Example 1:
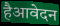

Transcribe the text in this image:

हैआवेदन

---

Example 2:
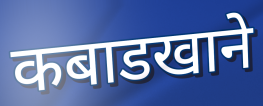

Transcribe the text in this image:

कबाडखाने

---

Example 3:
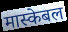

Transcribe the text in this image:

मास्केबल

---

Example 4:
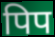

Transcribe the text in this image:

पिप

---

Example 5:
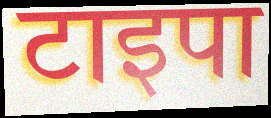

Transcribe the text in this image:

टाइपा